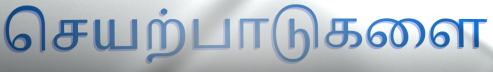
செயற்பாடுகளை